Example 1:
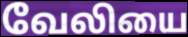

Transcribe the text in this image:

வேலியை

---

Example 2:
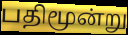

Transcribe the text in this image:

பதிமூன்று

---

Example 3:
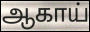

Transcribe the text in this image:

ஆகாய்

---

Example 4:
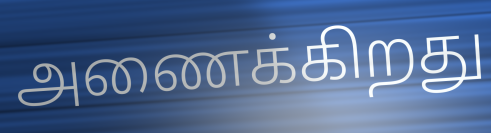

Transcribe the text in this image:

அணைக்கிறது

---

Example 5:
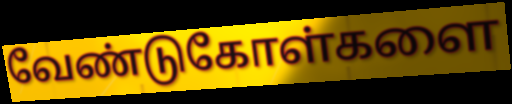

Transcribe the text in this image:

வேண்டுகோள்களை